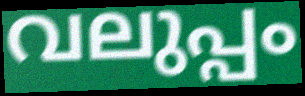
വലുപ്പം